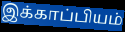
இக்காப்பியம்